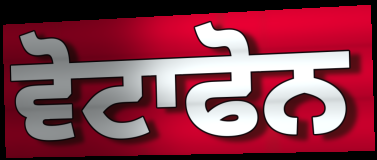
ਵੋਟਾਫੋਨ